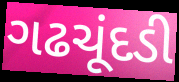
ગઢચૂંદડી